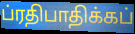
ப்ரதிபாதிக்கப்